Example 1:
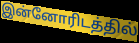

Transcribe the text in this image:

இன்னோரிடத்தில்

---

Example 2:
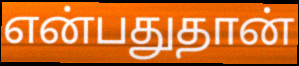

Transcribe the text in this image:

என்பதுதான்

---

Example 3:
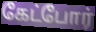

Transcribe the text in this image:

கேட்போர்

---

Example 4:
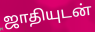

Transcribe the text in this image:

ஜாதியுடன்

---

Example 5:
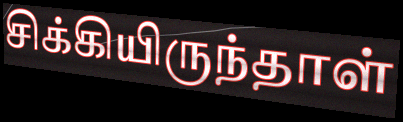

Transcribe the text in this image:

சிக்கியிருந்தாள்